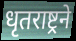
धृतराष्ट्रने